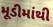
મૂડીમાંથી